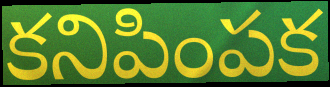
కనిపింపక